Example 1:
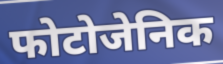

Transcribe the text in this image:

फोटोजेनिक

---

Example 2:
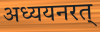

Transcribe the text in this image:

अध्ययनरत्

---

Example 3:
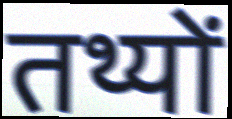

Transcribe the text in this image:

तथ्यों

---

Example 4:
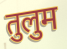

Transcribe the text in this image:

तुलुम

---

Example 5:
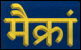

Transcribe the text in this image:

मैक्रां